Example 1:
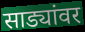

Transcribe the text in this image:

साड्यांवर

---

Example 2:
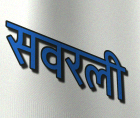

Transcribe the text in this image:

सवरली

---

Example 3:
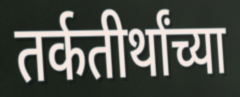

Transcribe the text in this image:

तर्कतीर्थांच्या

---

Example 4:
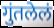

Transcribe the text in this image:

गुंतलेलं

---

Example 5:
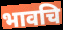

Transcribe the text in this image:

भावचि